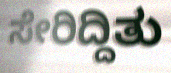
ಸೇರಿದ್ದಿತು